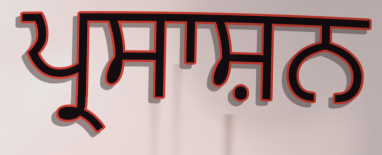
ਪ੍ਰਸਾਸ਼ਨ